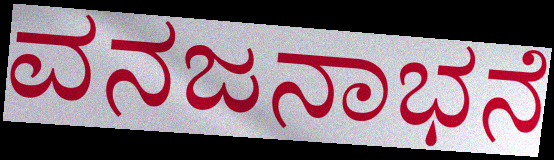
ವನಜನಾಭನೆ